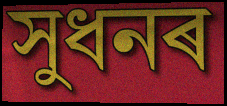
সুধনৰ